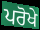
ਪਰੋਖੇ